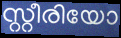
സ്റ്റീരിയോ